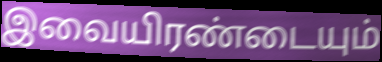
இவையிரண்டையும்